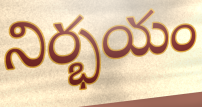
నిర్భయం